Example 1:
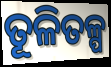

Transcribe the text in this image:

ତୂଳିତଳ୍ପ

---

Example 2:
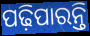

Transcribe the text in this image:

ପଢ଼ିପାରନ୍ତି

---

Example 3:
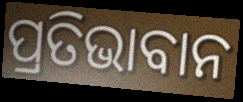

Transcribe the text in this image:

ପ୍ରତିଭାବାନ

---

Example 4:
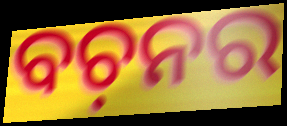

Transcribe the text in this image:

ବଚ଼ନର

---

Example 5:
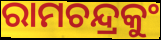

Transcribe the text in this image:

ରାମଚନ୍ଦ୍ରକୁଂ